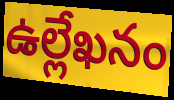
ఉల్లేఖనం